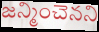
జన్మించెనని